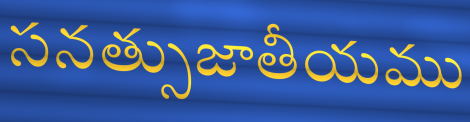
సనత్సుజాతీయము